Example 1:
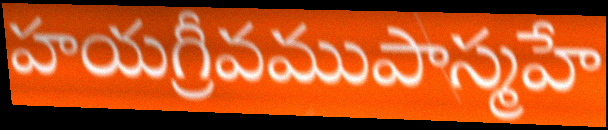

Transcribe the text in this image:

హయగ్రీవముపాస్మహే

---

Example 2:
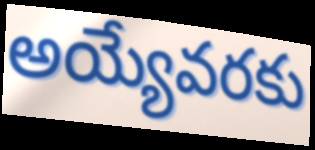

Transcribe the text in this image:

అయ్యేవరకు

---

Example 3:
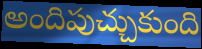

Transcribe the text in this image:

అందిపుచ్చుకుంది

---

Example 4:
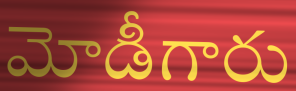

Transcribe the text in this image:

మోడీగారు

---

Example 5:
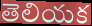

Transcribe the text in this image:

తెలియక